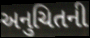
અનુચિતની